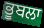
ਭੂਬਲਾ